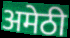
अमेठी